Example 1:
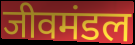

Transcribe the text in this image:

जीवमंडल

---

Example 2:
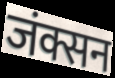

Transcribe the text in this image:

जंक्सन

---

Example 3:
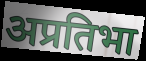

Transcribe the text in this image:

अप्रतिभा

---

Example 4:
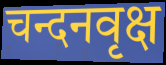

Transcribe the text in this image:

चन्दनवृक्ष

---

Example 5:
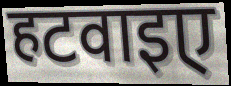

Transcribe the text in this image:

हटवाइए